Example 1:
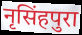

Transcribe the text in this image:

नृसिंहपुरा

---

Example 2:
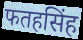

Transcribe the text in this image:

फतहसिंह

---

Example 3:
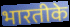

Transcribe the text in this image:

भारतीके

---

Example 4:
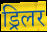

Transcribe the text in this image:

ड्रिलर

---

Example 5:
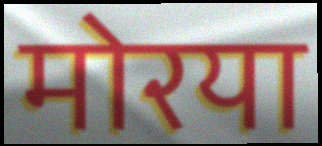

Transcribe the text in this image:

मोरया